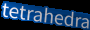
tetrahedra